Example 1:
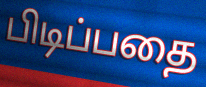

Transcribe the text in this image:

பிடிப்பதை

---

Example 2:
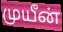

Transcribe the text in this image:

முயீன்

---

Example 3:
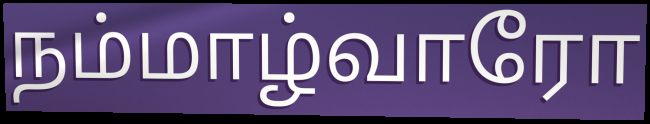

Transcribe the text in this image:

நம்மாழ்வாரோ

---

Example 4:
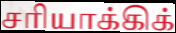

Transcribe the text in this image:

சரியாக்கிக்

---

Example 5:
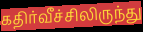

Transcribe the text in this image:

கதிர்வீச்சிலிருந்து